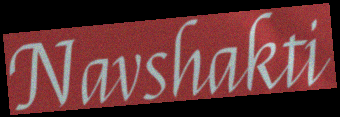
Navshakti